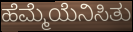
ಹೆಮ್ಮೆಯೆನಿಸಿತು